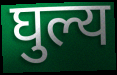
घुल्य